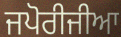
ਜਪੋਰੀਜੀਆ